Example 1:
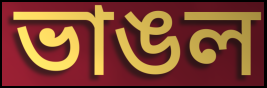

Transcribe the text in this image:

ভাঙল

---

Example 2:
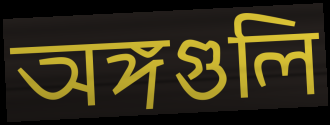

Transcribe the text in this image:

অঙ্গগুলি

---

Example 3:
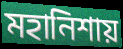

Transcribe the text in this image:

মহানিশায়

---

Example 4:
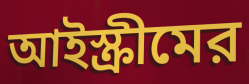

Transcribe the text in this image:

আইস্ক্রীমের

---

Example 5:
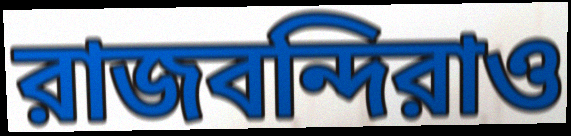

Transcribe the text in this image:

রাজবন্দিরাও